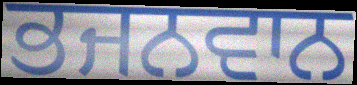
ਭਜਨਵਾਨ